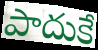
పాదుకే